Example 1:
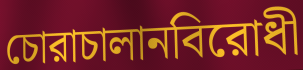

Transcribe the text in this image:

চোরাচালানবিরোধী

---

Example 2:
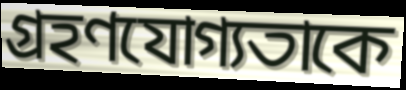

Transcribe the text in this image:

গ্রহণযোগ্যতাকে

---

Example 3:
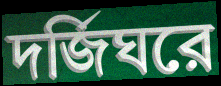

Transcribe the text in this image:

দর্জিঘরে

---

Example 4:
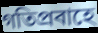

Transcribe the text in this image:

গতিপ্রবাহে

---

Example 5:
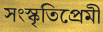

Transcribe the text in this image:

সংস্কৃতিপ্রেমী